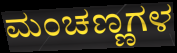
ಮಂಚಣ್ಣಗಳ